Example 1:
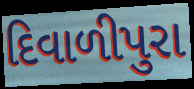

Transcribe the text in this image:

દિવાળીપુરા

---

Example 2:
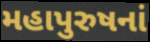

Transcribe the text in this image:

મહાપુરુષનાં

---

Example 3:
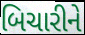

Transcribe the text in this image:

બિચારીને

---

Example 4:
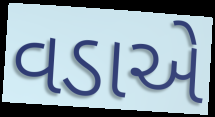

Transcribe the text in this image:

વડાએ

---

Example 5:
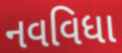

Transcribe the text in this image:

નવવિધા